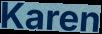
Karen